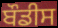
ਬੌਡੀਸ